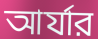
আর্যার